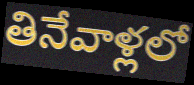
తినేవాళ్లలో